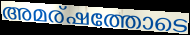
അമര്ഷത്തോടെ